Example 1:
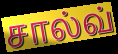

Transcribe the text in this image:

சால்வ்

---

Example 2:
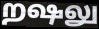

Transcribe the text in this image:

றஷலு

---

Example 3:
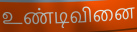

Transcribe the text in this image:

உண்டிவினை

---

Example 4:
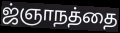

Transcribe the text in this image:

ஜ்ஞாநத்தை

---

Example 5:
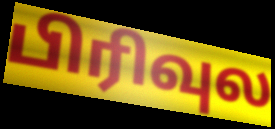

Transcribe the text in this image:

பிரிவுல